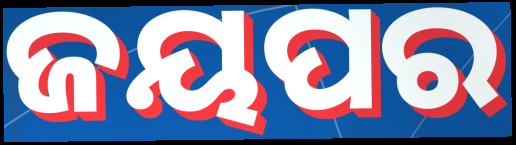
ଜୟପର